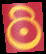
ఠి